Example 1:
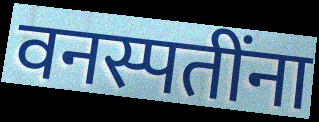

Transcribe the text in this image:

वनस्‍पतींना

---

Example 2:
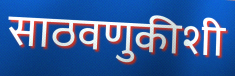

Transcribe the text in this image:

साठवणुकीशी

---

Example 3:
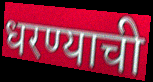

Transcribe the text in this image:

धरण्याची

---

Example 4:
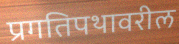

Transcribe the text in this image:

प्रगतिपथावरील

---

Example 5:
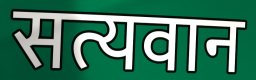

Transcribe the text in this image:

सत्यवान